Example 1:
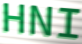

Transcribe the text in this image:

HNI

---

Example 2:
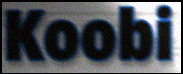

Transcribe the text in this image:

Koobi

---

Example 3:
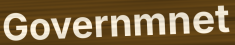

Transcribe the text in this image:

Governmnet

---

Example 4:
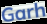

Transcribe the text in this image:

Garh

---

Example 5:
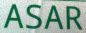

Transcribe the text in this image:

ASAR